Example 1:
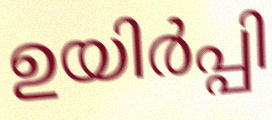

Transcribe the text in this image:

ഉയിർപ്പി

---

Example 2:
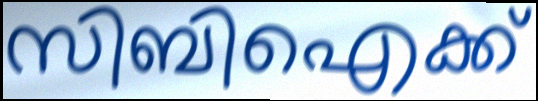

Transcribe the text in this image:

സിബിഐക്ക്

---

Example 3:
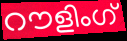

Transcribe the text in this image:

റൗളിംഗ്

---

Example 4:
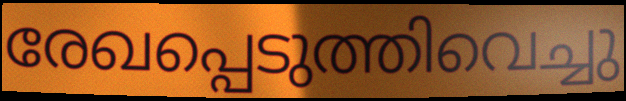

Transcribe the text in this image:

രേഖപ്പെടുത്തിവെച്ചു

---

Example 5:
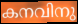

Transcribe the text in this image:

കനവിനു